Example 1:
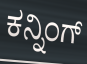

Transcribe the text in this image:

ಕನ್ನಿಂಗ್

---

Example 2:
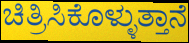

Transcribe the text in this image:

ಚಿತ್ರಿಸಿಕೊಳ್ಳುತ್ತಾನೆ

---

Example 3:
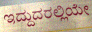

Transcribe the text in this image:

ಇದ್ದುದರಲ್ಲಿಯೇ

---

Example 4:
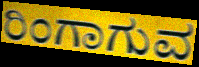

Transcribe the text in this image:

ರಿಂಗಾಗುವ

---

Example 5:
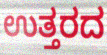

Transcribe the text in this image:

ಉತ್ತರದ